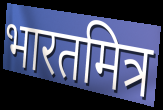
भारतमित्र